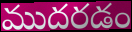
ముదరడం